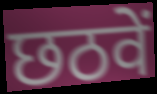
छठवें